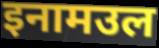
इनामउल